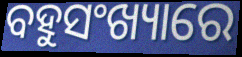
ବହୁସଂଖ୍ୟାରେ